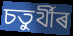
চতুৰ্থীৰ